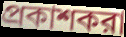
প্রকাশকরা